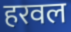
हरवल